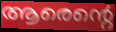
ആരെന്റെ